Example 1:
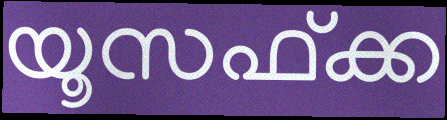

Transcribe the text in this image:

യൂസഫ്ക്ക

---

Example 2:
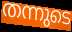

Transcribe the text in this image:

തന്നുടെ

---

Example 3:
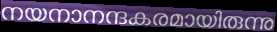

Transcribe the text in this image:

നയനാനന്ദകരമായിരുന്നു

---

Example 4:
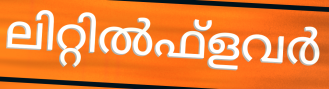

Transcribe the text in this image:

ലിറ്റിൽഫ്ളവർ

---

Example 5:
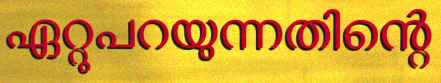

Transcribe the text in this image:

ഏറ്റുപറയുന്നതിന്റെ